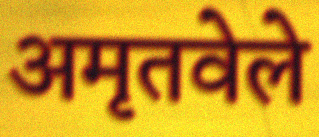
अमृतवेले